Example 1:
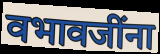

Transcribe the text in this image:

वभावजींना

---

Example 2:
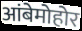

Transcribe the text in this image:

आंबेमोहोर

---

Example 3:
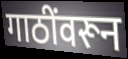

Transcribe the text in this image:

गाठींवरून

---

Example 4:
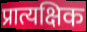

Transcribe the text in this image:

प्रात्यक्षिक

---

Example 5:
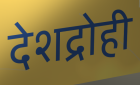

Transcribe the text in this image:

देशद्रोही